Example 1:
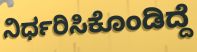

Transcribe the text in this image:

ನಿರ್ಧರಿಸಿಕೊಂಡಿದ್ದೆ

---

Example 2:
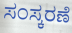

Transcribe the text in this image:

ಸಂಸ್ಕರಣೆ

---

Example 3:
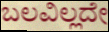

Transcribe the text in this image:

ಬಲವಿಲ್ಲದೇ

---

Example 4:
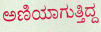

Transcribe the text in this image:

ಅಣಿಯಾಗುತ್ತಿದ್ದ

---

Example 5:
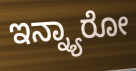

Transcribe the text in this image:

ಇನ್ನ್ಯಾರೋ